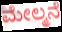
ಮೇಲ್ಮನೆ